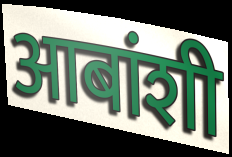
आबांशी